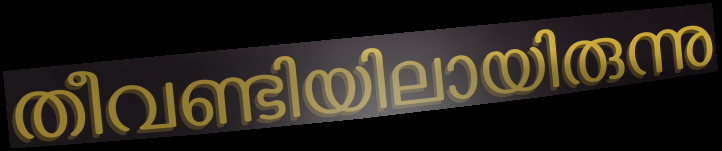
തീവണ്ടിയിലായിരുന്നു